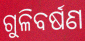
ଗୁଳିବର୍ଷଣ